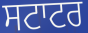
ਸਟਾਟਰ